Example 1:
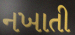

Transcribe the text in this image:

નખાતી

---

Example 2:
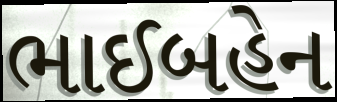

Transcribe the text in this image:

ભાઈબહેન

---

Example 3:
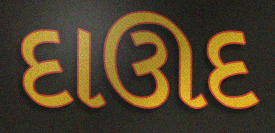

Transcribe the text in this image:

દાઊદ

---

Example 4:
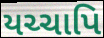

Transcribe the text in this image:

યચ્ચાપિ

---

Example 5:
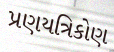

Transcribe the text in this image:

પ્રણયત્રિકોણ